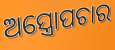
ଅସ୍ତ୍ରୋପଚାର